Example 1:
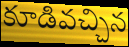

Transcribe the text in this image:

కూడివచ్చిన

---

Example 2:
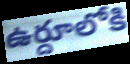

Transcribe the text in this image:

ఉర్దూలోకి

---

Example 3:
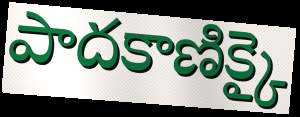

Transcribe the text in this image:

పాదకాణిక్కై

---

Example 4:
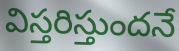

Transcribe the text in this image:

విస్తరిస్తుందనే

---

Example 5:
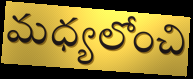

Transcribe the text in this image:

మధ్యలోంచి